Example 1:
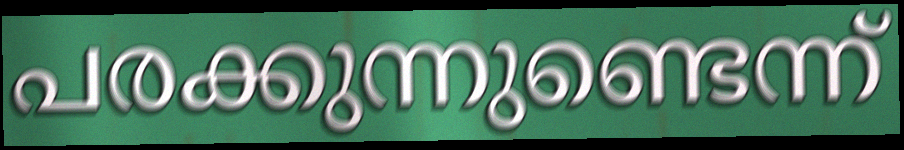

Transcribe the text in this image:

പരക്കുന്നുണ്ടെന്ന്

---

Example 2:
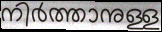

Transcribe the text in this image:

നിർത്താനുള്ള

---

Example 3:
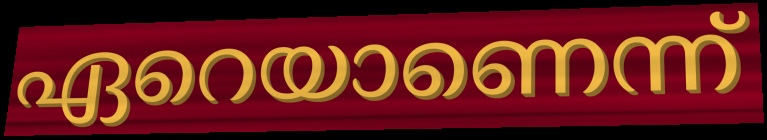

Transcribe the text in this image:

ഏറെയാണെന്ന്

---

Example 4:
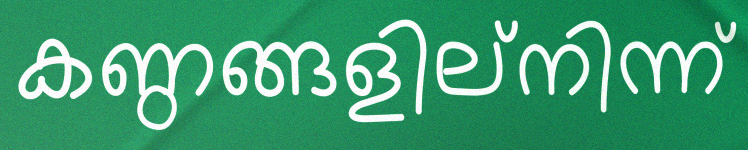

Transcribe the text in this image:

കണ്ഠങ്ങളില്നിന്ന്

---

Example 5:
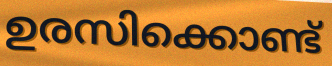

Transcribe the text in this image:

ഉരസിക്കൊണ്ട്